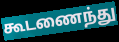
கூடணைந்து